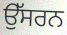
ਉੱਸਰਨ